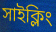
সাইক্লিং